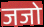
जजो